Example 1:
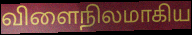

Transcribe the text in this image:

விளைநிலமாகிய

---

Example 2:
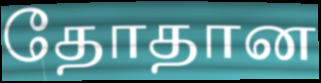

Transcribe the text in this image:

தோதான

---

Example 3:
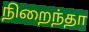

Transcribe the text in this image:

நிறைந்தா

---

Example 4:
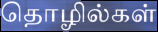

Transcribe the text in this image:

தொழில்கள்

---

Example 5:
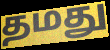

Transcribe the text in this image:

தமது